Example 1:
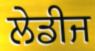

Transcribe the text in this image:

ਲੇਡੀਜ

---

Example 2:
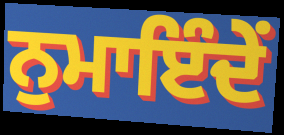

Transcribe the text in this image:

ਨੁਮਾਇੰਦੇਂ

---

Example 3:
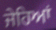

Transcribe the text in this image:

ਜੇਹਿਆਂ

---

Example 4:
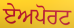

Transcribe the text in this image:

ਏਅਪੋਰਟ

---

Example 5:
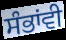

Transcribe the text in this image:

ਸੰਭਾਂਵੀ